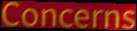
Concerns